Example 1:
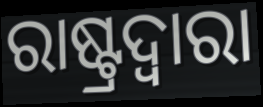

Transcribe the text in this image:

ରାଷ୍ଟ୍ରଦ୍ୱାରା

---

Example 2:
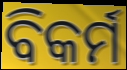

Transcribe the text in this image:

ବିକର୍ମ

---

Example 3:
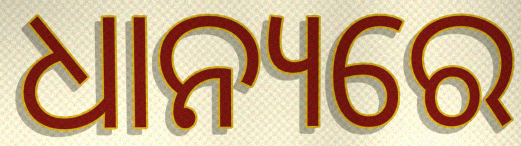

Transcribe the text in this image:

ଧାନ୍ୟରେ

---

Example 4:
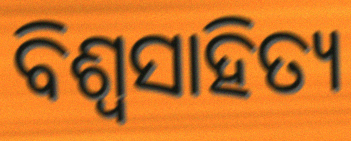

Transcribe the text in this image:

ବିଶ୍ଵସାହିତ୍ୟ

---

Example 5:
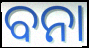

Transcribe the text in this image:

ବନା